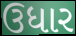
ઉધાર